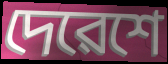
দেৱেশে